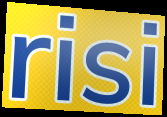
risi